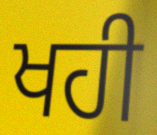
ਖਹੀ